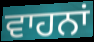
ਵਾਹਨਾਂ